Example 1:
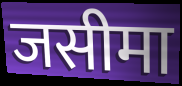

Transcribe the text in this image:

जसीमा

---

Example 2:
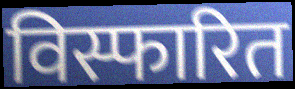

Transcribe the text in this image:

विस्फारित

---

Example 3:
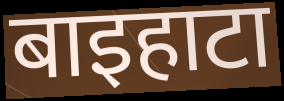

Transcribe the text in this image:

बाइहाटा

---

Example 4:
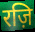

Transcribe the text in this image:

रज़ि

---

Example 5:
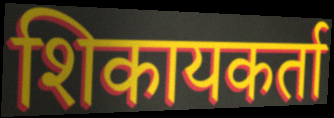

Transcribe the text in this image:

शिकायकर्ता